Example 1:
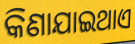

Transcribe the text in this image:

କିଣାଯାଇଥାଏ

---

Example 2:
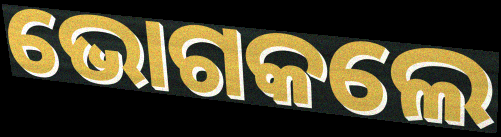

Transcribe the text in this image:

ଭୋଗକଲେ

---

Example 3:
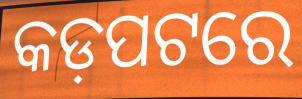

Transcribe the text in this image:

କଡ଼ପଟରେ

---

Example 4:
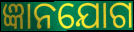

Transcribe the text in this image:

ଜ୍ଞାନଯୋଗ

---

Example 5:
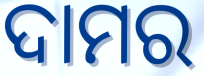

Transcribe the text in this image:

ଦାମର